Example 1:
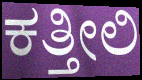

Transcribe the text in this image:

ಕತ್ತೀಲಿ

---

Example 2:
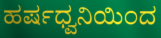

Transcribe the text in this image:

ಹರ್ಷಧ್ವನಿಯಿಂದ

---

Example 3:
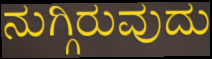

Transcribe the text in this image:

ನುಗ್ಗಿರುವುದು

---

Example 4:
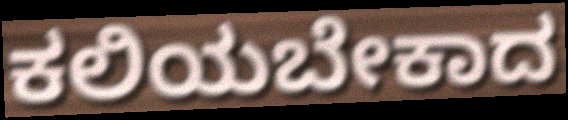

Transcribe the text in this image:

ಕಲಿಯಬೇಕಾದ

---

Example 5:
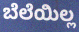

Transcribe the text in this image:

ಬೆಲೆಯಿಲ್ಲ